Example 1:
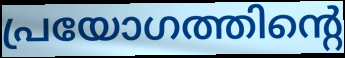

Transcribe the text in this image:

പ്രയോഗത്തിന്റെ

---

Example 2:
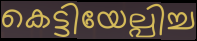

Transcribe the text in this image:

കെട്ടിയേല്പിച്ച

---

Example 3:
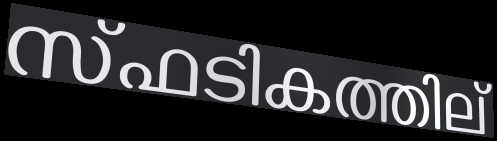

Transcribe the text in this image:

സ്ഫടികത്തില്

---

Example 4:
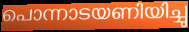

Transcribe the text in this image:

പൊന്നാടയണിയിച്ചു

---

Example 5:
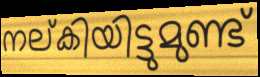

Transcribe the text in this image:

നല്കിയിട്ടുമുണ്ട്